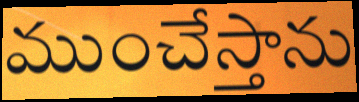
ముంచేస్తాను